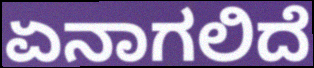
ಏನಾಗಲಿದೆ